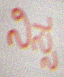
ನಿಸ್ಸ